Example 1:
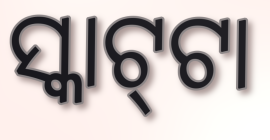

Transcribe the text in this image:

ସ୍କାଟ୍‌ଟା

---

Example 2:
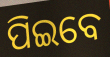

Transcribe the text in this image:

ପିଇବେ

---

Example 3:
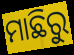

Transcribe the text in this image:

ମାଛିରୁ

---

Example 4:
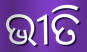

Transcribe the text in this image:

ଭୀତି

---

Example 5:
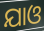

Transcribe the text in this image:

ଯାଓ